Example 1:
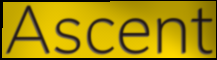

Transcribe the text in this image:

Ascent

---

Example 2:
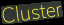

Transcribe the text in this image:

Cluster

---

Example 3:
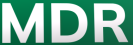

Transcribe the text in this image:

MDR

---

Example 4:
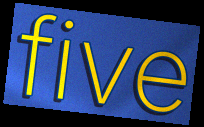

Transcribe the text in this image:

five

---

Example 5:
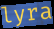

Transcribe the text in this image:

lyra